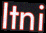
Itni